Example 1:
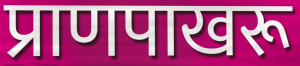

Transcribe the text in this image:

प्राणपाखरू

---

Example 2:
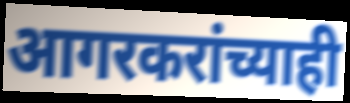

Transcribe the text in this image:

आगरकरांच्याही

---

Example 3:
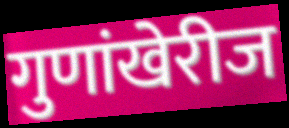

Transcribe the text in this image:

गुणांखेरीज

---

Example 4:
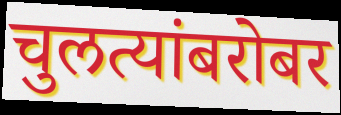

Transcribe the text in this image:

चुलत्यांबरोबर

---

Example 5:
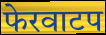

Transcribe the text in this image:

फेरवाटप